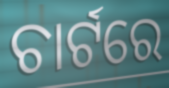
ଚାର୍ଟରେ